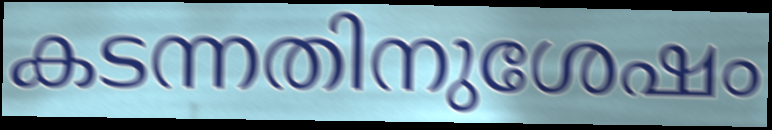
കടന്നതിനുശേഷം